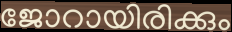
ജോറായിരിക്കും